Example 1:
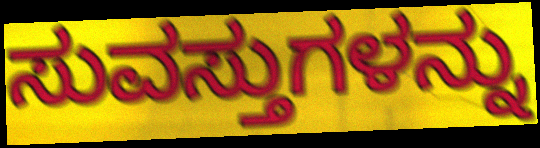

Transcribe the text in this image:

ಸುವಸ್ತುಗಳನ್ನು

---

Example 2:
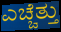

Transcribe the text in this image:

ಎಚ್ಚೆತ್ತು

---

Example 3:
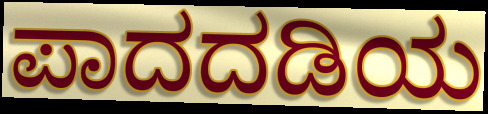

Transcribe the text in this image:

ಪಾದದಡಿಯ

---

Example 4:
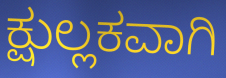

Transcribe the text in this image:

ಕ್ಷುಲ್ಲಕವಾಗಿ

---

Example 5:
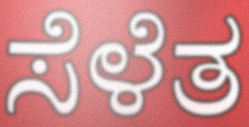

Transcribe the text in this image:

ಸೆಳೆತ